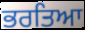
ਭਰਤਿਆ